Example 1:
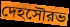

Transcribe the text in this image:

দেহসৌরভ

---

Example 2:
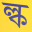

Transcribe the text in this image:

ল্ক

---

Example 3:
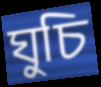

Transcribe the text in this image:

ঘুচি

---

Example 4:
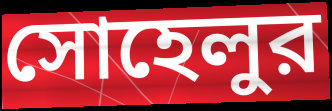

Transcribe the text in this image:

সোহেলুর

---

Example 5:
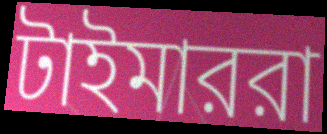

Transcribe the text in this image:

টাইমাররা